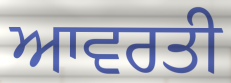
ਆਵਰਤੀ